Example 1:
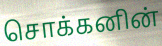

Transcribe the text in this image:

சொக்கனின்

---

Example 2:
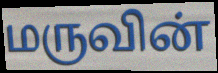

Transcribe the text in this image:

மருவின்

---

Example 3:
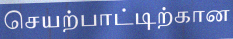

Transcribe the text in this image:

செயற்பாட்டிற்கான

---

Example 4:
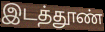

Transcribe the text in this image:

இடத்தூண்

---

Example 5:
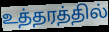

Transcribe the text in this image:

உத்தரத்தில்